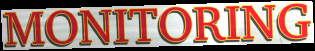
MONITORING